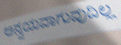
ಅನ್ವಯವಾಗುವುದಿಲ್ಲ